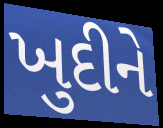
ખુદીને